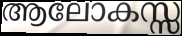
ആലോകസ്സ